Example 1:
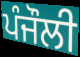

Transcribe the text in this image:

ਪੰਜੌਲੀ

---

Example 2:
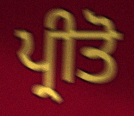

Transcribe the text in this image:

ਪ੍ਰੀਤੋ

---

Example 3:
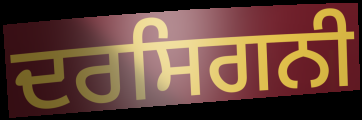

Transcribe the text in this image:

ਦਰਸਿਗਨੀ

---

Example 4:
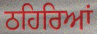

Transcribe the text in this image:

ਠਹਿਰਿਆਂ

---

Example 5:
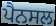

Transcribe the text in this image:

ਪੈਨਸਲ